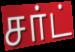
சர்ட்